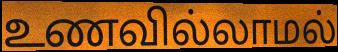
உணவில்லாமல்